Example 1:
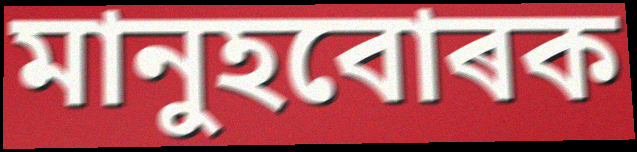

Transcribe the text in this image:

মানুহবোৰক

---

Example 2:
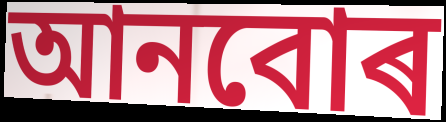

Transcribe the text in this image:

আনবোৰ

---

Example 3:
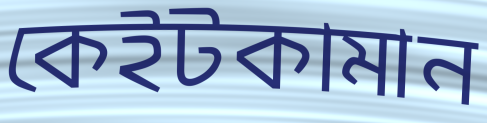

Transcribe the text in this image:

কেইটকামান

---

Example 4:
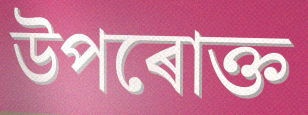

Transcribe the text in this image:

উপৰোক্ত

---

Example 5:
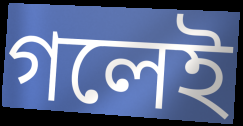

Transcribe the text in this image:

গলেই